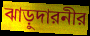
ঝাড়ুদারনীর